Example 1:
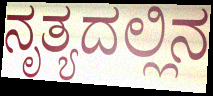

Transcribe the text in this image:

ನೃತ್ಯದಲ್ಲಿನ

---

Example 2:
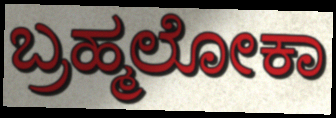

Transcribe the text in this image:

ಬ್ರಹ್ಮಲೋಕಾ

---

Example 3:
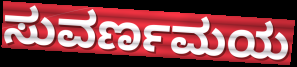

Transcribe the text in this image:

ಸುವರ್ಣಮಯ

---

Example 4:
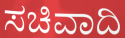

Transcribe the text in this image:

ಸಚಿವಾದಿ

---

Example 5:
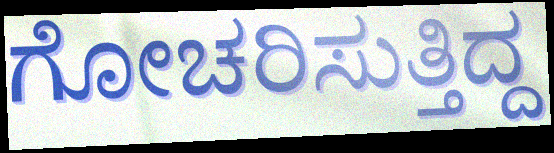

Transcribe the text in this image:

ಗೋಚರಿಸುತ್ತಿದ್ದ